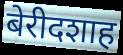
बेरीदशाह